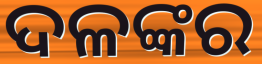
ଦଳଙ୍କର